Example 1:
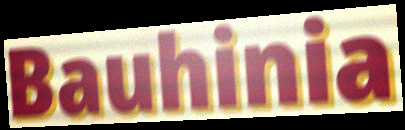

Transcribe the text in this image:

Bauhinia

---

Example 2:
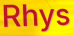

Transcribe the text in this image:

Rhys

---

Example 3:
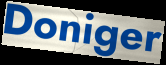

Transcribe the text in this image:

Doniger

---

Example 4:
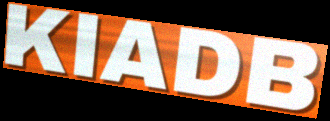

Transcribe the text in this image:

KIADB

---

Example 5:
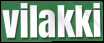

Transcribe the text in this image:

vilakki